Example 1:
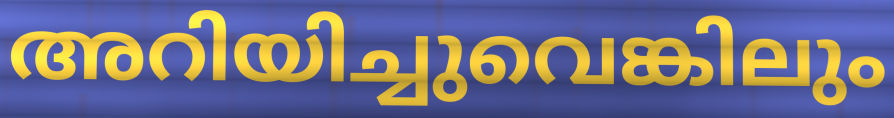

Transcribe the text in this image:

അറിയിച്ചുവെങ്കിലും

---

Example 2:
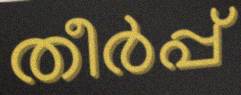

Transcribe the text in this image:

തീർപ്പ്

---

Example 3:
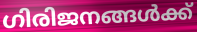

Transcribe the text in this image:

ഗിരിജനങ്ങൾക്ക്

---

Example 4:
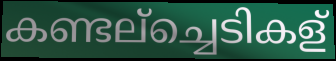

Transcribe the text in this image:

കണ്ടല്ച്ചെടികള്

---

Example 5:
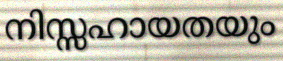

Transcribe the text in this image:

നിസ്സഹായതയും